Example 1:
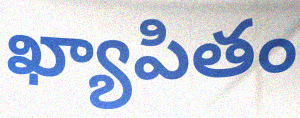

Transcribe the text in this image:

ఖ్యాపితం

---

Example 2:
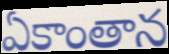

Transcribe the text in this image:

ఏకాంతాన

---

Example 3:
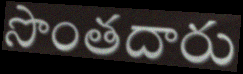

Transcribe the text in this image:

సొంతదారు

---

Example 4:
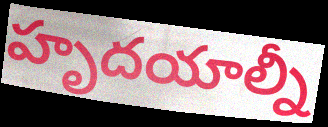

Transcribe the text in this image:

హృదయాల్నీ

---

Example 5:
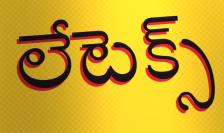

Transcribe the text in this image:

లేటెక్స్